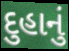
દુહાનું